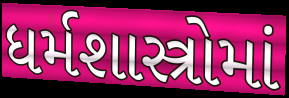
ધર્મશાસ્ત્રોમાં